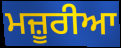
ਮਜ਼ੂਰੀਆ